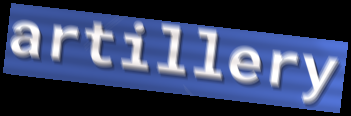
artillery